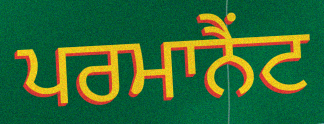
ਪਰਮਾਨੈਂਟ